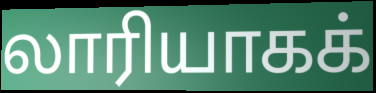
லாரியாகக்